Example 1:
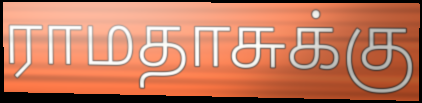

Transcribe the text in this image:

ராமதாசுக்கு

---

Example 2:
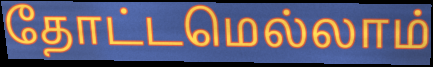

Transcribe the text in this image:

தோட்டமெல்லாம்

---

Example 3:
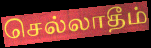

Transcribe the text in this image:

செல்லாதீம்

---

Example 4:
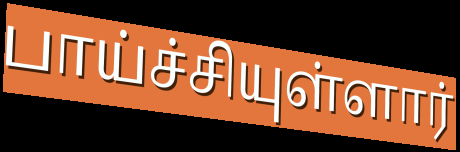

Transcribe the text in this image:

பாய்ச்சியுள்ளார்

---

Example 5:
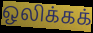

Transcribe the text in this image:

ஒலிக்கக்